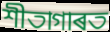
শীতাগাৰত